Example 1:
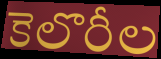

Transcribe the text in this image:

కెలొరీల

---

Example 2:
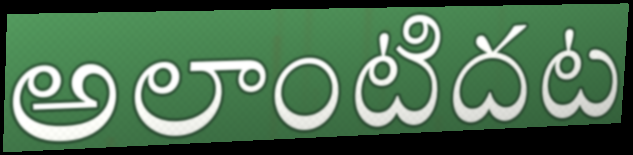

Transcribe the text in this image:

అలాంటిదట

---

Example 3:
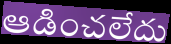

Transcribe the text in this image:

ఆడించలేదు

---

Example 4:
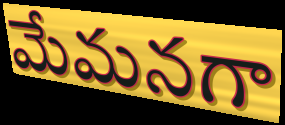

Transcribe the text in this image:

మేమనగా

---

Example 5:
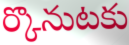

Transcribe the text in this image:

ర్కొనుటకు